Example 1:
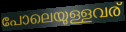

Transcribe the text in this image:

പോലെയുള്ളവര്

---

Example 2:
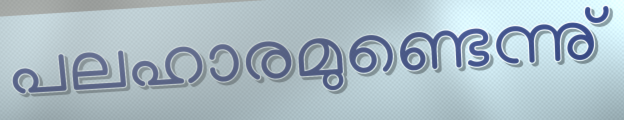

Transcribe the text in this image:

പലഹാരമുണ്ടെന്നു്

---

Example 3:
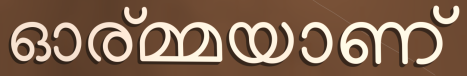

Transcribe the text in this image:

ഓര്മ്മയാണ്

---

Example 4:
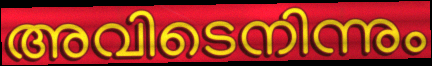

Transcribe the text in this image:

അവിടെനിന്നും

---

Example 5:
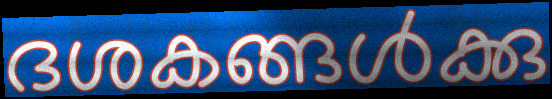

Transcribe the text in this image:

ദശകങ്ങൾക്കു